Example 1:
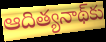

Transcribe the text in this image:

ఆదిత్యనాథ్‌కు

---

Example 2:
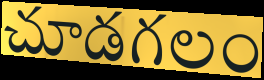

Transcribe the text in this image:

చూడగలం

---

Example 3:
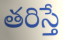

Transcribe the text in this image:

తరిస్తే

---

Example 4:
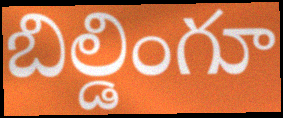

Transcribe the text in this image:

బిల్డింగూ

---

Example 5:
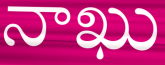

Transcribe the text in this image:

నాఖు